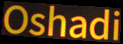
Oshadi